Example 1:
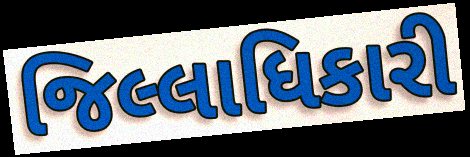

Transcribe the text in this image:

જિલ્લાધિકારી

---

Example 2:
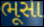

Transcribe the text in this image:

ભૂસા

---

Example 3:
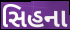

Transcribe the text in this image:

સિહના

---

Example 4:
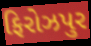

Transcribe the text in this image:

ફિરોઝપુર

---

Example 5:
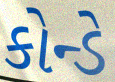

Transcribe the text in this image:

કોન્ડે